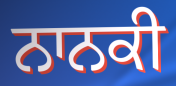
ਨਾਨਕੀ